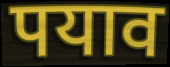
पयाव